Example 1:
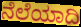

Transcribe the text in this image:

ನೆಲೆಯಾದಿ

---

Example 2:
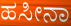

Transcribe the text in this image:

ಹಸೀನಾ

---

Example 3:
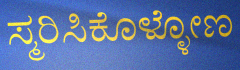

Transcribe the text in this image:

ಸ್ಮರಿಸಿಕೊಳ್ಳೋಣ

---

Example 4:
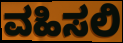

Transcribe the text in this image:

ವಹಿಸಲಿ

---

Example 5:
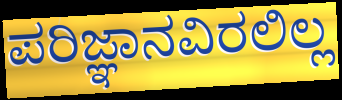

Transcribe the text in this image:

ಪರಿಜ್ಞಾನವಿರಲಿಲ್ಲ